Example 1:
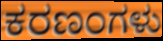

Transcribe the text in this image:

ಕರಣಂಗಳು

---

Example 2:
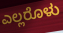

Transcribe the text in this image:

ಎಲ್ಲರೊಳು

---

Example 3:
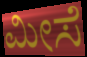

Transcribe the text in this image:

ಮೀಸೆ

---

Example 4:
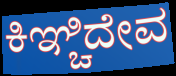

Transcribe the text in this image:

ಕಿಞ್ಚಿದೇವ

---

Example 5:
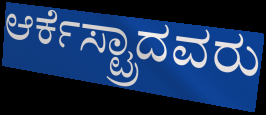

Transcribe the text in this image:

ಆರ್ಕೆಸ್ಟ್ರಾದವರು